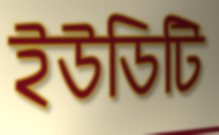
ইউডিটি